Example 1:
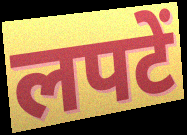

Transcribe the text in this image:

लपटें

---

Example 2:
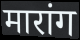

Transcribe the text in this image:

मारांग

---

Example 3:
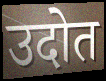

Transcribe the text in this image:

उदोत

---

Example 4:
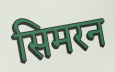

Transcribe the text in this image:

सिमरन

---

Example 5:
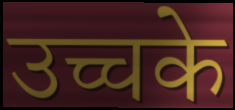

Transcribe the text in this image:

उच्चके